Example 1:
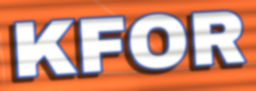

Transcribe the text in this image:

KFOR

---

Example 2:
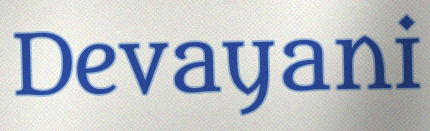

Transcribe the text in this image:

Devayani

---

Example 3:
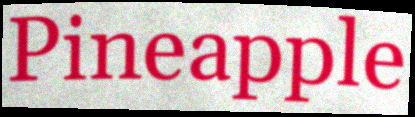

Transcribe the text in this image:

Pineapple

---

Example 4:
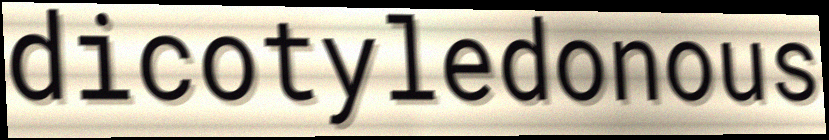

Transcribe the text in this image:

dicotyledonous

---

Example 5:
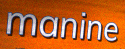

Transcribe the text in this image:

manine